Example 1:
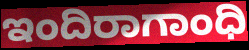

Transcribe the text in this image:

ಇಂದಿರಾಗಾಂಧಿ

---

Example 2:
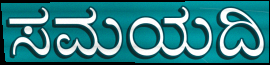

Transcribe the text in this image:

ಸಮಯದಿ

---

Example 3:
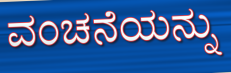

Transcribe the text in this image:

ವಂಚನೆಯನ್ನು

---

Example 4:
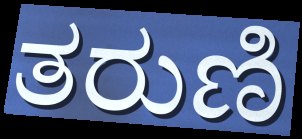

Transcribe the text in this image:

ತರುಣಿ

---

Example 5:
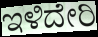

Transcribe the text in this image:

ಇಳಿದೇರಿ